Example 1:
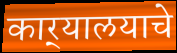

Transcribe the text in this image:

कार्यालयाचे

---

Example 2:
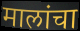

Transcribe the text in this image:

मालांचा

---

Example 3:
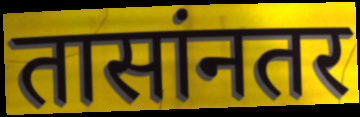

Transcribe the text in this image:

तासांनतर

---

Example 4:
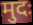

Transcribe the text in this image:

मुदः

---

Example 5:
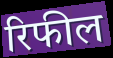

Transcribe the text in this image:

रिफील